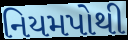
નિયમપોથી